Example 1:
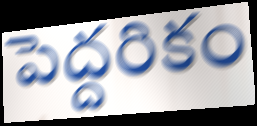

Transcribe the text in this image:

పెద్దరికం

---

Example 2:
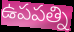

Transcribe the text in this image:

ఉపపత్ని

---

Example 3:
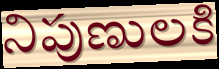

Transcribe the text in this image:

నిపుణులకి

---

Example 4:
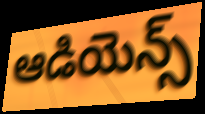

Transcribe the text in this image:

ఆడియెన్స్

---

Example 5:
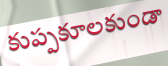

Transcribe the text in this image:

కుప్పకూలకుండా